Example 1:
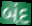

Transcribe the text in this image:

બંદ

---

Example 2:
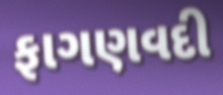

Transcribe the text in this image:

ફાગણવદી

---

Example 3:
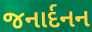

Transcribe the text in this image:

જનાર્દનન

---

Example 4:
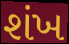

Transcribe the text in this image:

શંખ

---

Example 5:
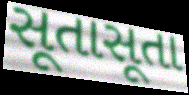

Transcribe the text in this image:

સૂતાસૂતા